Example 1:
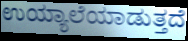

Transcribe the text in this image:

ಉಯ್ಯಾಲೆಯಾಡುತ್ತದೆ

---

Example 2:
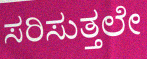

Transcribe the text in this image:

ಸರಿಸುತ್ತಲೇ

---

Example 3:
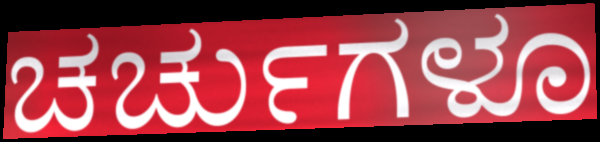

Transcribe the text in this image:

ಚರ್ಚುಗಳೂ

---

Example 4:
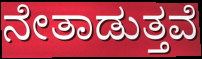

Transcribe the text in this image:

ನೇತಾಡುತ್ತವೆ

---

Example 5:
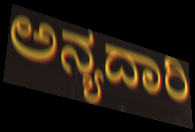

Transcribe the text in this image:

ಅನ್ಯದಾರಿ